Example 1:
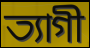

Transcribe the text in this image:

ত্যাগী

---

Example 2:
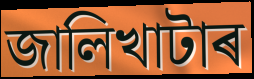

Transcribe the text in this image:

জালিখাটাৰ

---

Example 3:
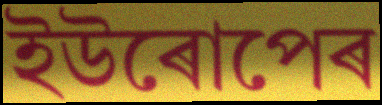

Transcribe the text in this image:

ইউৰোপেৰ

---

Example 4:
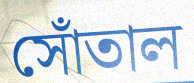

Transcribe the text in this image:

সোঁতাল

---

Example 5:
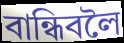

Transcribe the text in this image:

বান্ধিবলৈ